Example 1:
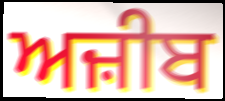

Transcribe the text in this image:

ਅਜ਼ੀਬ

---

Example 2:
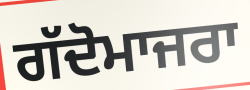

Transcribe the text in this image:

ਗੱਦੋਮਾਜਰਾ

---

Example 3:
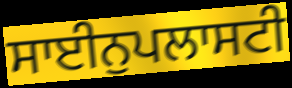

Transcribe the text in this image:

ਸਾਈਨੁਪਲਾਸਟੀ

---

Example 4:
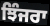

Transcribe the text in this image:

ਝਿੰਜਰਾ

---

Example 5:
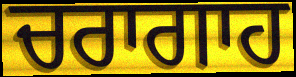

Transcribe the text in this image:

ਚਰਾਗਾਹ